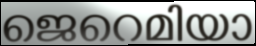
ജെറെമിയാ